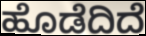
ಹೊಡೆದಿದೆ